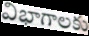
విభాగాలకు